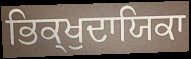
ਭਿਕ੍ਖੁਦਾਯਿਕਾ